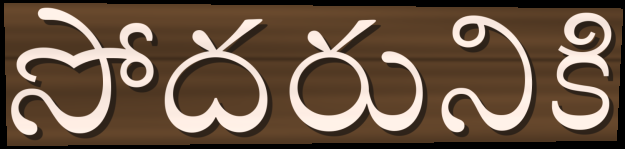
సోదరునికి